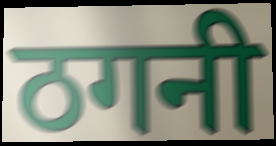
ठगनी